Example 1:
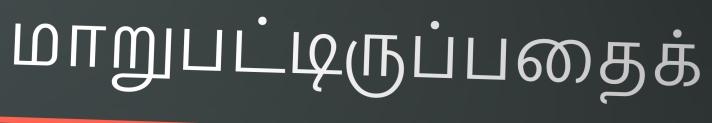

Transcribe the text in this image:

மாறுபட்டிருப்பதைக்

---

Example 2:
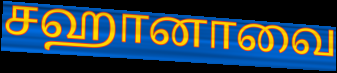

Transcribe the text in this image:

சஹானாவை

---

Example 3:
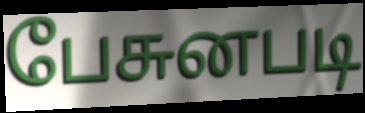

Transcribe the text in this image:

பேசுனபடி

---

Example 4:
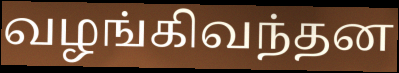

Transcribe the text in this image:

வழங்கிவந்தன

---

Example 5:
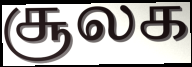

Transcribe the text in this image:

சூலக